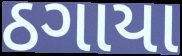
ઠગાયા